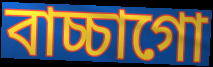
বাচ্চাগো